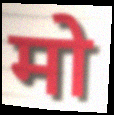
मो